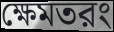
ক্ষেমতরং